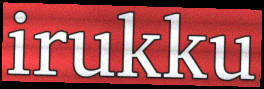
irukku